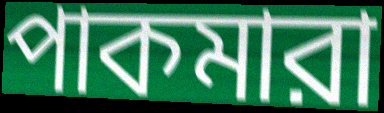
পাকমারা